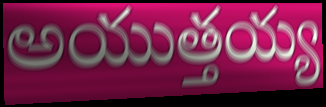
అయుత్తయ్య